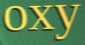
oxy